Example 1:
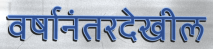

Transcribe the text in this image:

वर्षानंतरदेखील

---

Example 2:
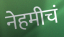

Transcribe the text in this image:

नेहमीचं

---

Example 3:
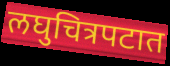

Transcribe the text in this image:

लघुचित्रपटात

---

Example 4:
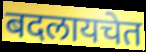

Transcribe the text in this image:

बदलायचेत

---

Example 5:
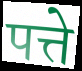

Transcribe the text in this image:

पत्ते